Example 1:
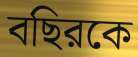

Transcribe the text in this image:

বছিরকে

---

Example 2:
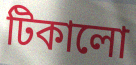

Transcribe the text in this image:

টিকালো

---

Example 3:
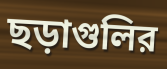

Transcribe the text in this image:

ছড়াগুলির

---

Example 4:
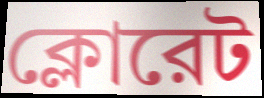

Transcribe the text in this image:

ক্লোরেট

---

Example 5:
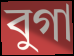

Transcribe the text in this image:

বুগা